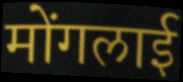
मोंगलाई